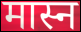
मास्न